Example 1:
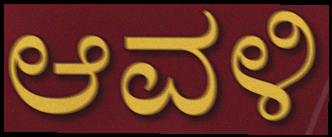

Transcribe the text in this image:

ಆವಳಿ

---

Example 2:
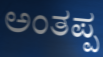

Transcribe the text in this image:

ಅಂತಪ್ಪ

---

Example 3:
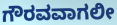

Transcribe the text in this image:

ಗೌರವವಾಗಲೀ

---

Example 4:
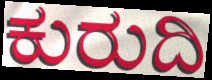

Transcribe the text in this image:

ಕುರುದಿ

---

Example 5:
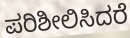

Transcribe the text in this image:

ಪರಿಶೀಲಿಸಿದರೆ